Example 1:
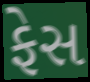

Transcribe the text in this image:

ફેસ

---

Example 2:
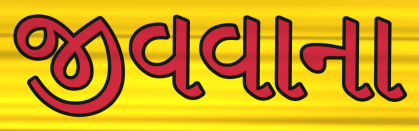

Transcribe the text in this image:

જીવવાના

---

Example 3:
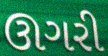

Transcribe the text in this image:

ઊગરી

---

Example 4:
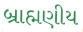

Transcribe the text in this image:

બ્રાહ્મણીય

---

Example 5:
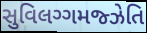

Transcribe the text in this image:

સુવિલગ્ગમજ્ઝેતિ